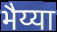
भैय्या